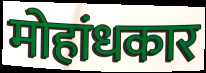
मोहांधकार